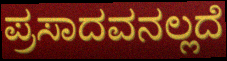
ಪ್ರಸಾದವನಲ್ಲದೆ